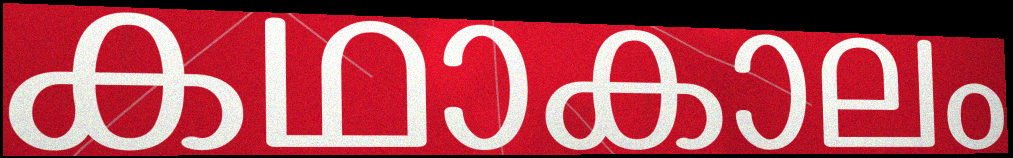
കഥാകാലം